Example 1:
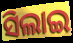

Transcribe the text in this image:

ସିଲାଇ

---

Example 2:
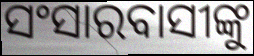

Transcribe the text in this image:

ସଂସାରବାସୀଙ୍କୁ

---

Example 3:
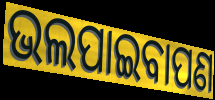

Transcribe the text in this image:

ଭଲପାଇବାପଣ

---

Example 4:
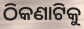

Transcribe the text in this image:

ଠିକଣାଟିକୁ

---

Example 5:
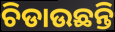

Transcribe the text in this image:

ଚିଡାଉଛନ୍ତି